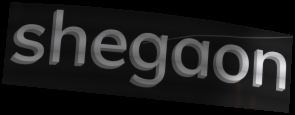
shegaon